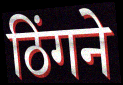
ठिंगने